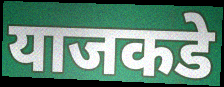
याजकडे